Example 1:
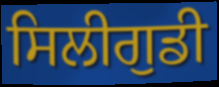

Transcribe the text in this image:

ਸਿਲੀਗੁਡੀ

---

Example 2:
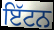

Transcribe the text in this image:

ਇੱਟਨ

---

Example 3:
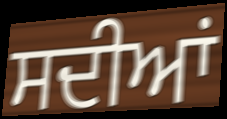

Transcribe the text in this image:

ਸਦੀਆਂ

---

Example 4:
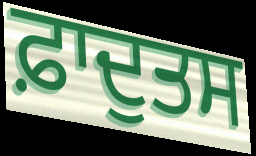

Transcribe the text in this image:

ਫ਼ਾਦੁਤਸ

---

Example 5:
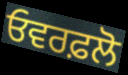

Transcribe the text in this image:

ਓਵਰਫ਼ਲੋ